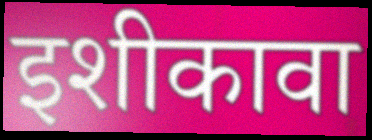
इशीकावा